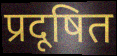
प्रदूषित